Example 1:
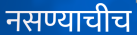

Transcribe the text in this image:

नसण्याचीच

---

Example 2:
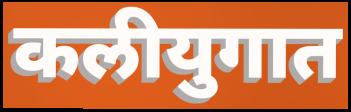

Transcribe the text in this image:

कलीयुगात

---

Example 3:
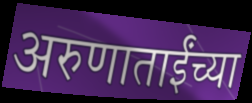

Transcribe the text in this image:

अरुणाताईंच्या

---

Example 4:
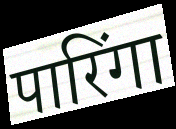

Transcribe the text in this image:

पारिंगा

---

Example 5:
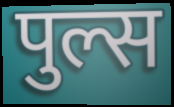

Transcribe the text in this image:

पुल्स